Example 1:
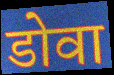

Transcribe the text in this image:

डोवा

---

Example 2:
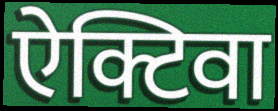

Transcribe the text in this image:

ऐक्टिवा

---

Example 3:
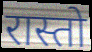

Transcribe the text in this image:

रास्तो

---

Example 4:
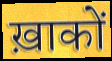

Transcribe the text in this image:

ख़ाकों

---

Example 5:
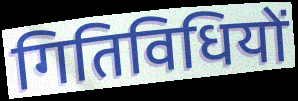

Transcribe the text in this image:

गितिविधियों